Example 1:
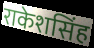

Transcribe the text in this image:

राकेशसिंह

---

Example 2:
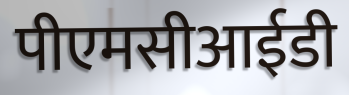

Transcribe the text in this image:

पीएमसीआईडी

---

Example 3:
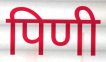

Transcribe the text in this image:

पिणी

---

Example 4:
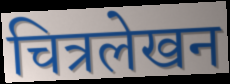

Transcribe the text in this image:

चित्रलेखन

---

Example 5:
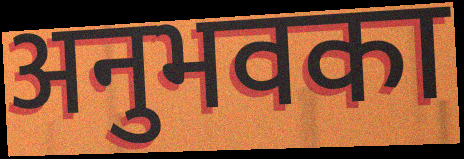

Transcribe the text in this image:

अनुभवका